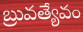
బ్రువత్యేవం